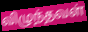
விழுந்தவள்